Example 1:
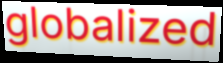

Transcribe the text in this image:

globalized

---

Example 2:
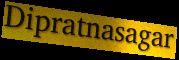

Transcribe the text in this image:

Dipratnasagar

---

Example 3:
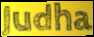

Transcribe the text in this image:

Judha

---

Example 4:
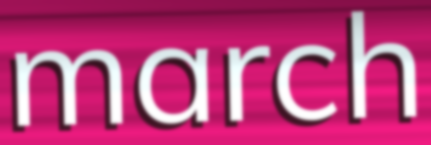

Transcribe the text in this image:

march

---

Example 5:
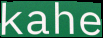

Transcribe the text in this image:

kahe